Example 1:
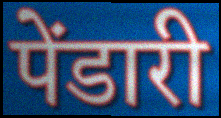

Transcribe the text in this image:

पेंडारी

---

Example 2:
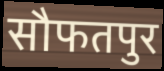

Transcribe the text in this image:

सौफतपुर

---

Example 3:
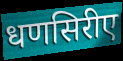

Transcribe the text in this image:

धणसिरीए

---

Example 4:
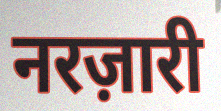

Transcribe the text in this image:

नरज़ारी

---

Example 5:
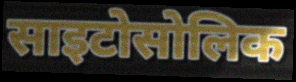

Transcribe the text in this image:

साइटोसोलिक